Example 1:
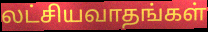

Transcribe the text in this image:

லட்சியவாதங்கள்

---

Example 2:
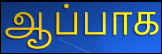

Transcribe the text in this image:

ஆப்பாக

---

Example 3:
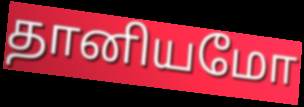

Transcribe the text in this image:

தானியமோ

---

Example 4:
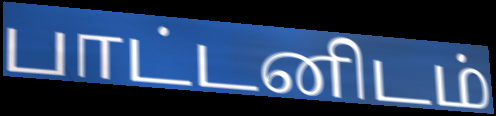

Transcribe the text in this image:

பாட்டனிடம்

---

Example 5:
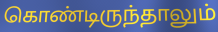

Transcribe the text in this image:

கொண்டிருந்தாலும்